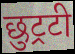
छुट्रटी